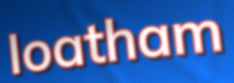
Ioatham